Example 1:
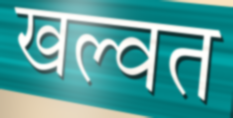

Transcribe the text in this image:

खल्वत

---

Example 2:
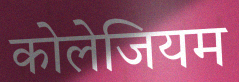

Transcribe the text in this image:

कोलेजियम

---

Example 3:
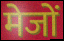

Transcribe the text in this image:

मेजों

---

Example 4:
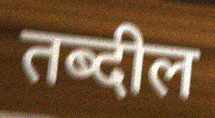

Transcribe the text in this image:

तब्‍दील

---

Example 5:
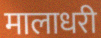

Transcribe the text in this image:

मालाधरी